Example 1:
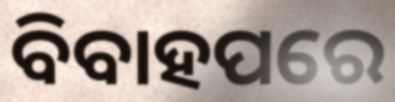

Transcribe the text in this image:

ବିବାହପରେ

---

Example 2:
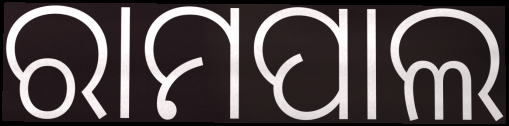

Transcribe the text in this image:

ରାମପାଲ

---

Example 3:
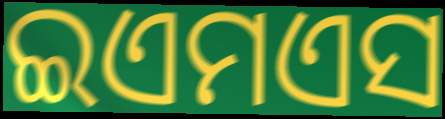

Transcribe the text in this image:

ଇଏମଏସ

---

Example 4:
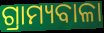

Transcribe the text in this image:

ଗ୍ରାମ୍ୟବାଳା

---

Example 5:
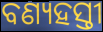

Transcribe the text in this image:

ବଣ୍ୟହସ୍ତୀ